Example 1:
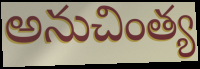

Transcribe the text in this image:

అనుచింత్య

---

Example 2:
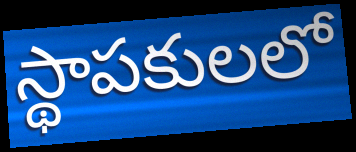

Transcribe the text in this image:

స్థాపకులలో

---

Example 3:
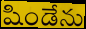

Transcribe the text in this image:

షిండేను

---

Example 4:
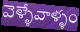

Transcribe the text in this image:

వెళ్ళేవాళ్ళం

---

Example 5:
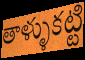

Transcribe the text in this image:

తాళ్ళుకట్టి